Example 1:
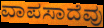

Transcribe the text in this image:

ವಾಪಸಾದೆವು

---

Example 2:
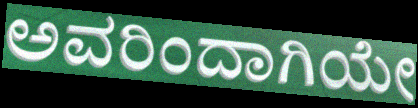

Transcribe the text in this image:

ಅವರಿಂದಾಗಿಯೇ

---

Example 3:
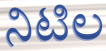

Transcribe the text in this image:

ನಿಟಿಲ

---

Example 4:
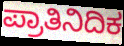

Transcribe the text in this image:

ಪ್ರಾತಿನಿದಿಕ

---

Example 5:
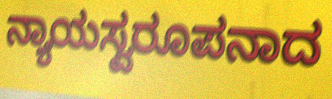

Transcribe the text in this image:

ನ್ಯಾಯಸ್ವರೂಪನಾದ